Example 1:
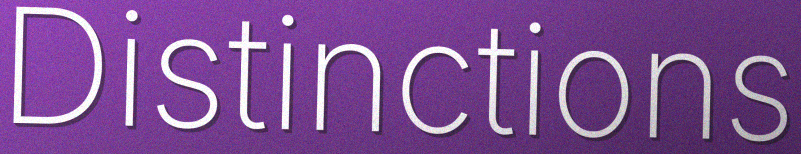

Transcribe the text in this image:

Distinctions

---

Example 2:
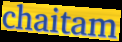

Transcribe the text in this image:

chaitam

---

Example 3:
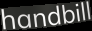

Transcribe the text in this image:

handbill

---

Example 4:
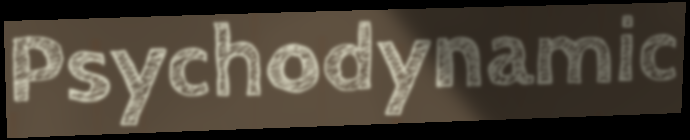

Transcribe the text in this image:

Psychodynamic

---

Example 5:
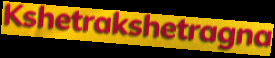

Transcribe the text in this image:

Kshetrakshetragna